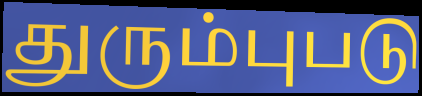
துரும்புபடு